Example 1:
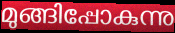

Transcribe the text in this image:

മുങ്ങിപ്പോകുന്നു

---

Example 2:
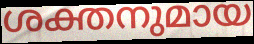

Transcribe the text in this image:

ശക്തനുമായ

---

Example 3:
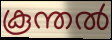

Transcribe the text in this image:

കൂന്തൽ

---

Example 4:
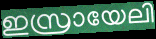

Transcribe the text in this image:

ഇസ്രായേലി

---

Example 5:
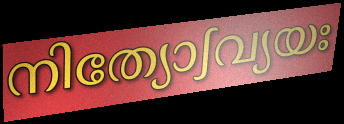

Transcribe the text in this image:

നിത്യോഽവ്യയഃ